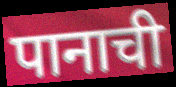
पानाची